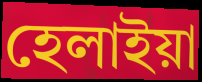
হেলাইয়া